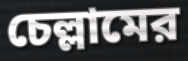
চেল্লামের